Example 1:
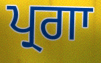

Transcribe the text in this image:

ਪ੍ਰਗਾ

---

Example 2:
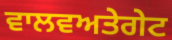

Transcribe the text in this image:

ਵਾਲਵਅਤੇਗੇਟ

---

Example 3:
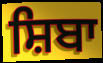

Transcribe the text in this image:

ਸ਼ਿਬਾ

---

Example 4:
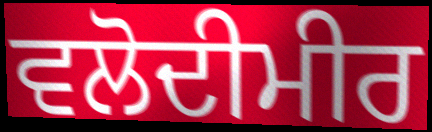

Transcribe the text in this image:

ਵਲੋਦੀਮੀਰ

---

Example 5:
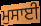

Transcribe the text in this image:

ਮੁਸਾਈ